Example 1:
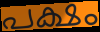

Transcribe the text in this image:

പക്ഷം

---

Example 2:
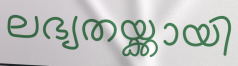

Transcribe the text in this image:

ലഭ്യതയ്ക്കായി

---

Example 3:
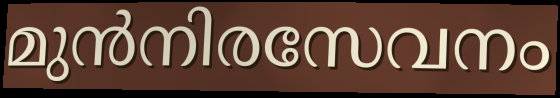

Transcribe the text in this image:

മുൻനിരസേവനം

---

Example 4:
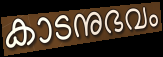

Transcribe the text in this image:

കാടനുഭവം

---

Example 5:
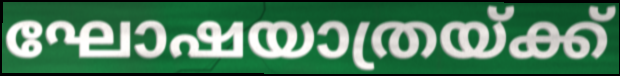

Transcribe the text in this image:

ഘോഷയാത്രയ്ക്ക്